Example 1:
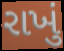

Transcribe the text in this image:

રાખું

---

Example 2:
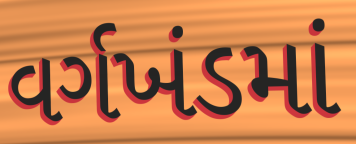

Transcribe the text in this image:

વર્ગખંડમાં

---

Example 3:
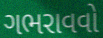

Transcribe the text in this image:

ગભરાવવો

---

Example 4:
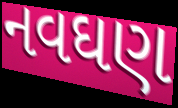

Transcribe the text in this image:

નવઘણ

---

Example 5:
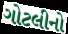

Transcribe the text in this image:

ગોટલીનો